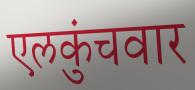
एलकुंचवार